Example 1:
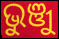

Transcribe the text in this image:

ଭୁଞ୍ଜୁ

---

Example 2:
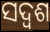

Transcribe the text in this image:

ସଦ୍ଵଶ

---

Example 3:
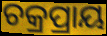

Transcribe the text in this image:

ଚକ୍ରପ୍ରାୟ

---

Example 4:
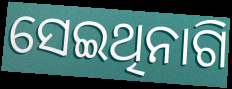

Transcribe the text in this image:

ସେଇଥିନାଗି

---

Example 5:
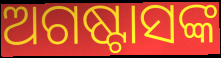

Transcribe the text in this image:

ଅଗଷ୍ଟାସଙ୍କ